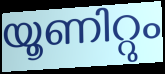
യൂണിറ്റും